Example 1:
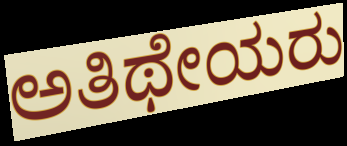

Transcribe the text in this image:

ಅತಿಥೇಯರು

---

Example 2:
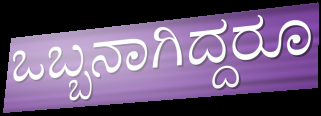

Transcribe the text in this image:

ಒಬ್ಬನಾಗಿದ್ದರೂ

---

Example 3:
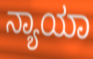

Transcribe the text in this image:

ನ್ಯಾಯಾ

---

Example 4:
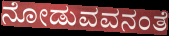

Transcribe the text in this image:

ನೋಡುವವನಂತೆ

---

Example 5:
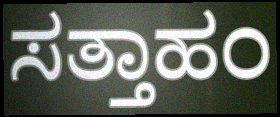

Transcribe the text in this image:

ಸತ್ತಾಹಂ